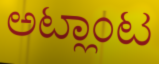
ಅಟ್ಲಾಂಟ